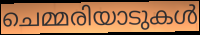
ചെമ്മരിയാടുകൾ